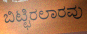
ಬಿಟ್ಟಿರಲಾರವು